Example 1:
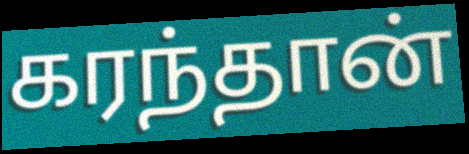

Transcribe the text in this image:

கரந்தான்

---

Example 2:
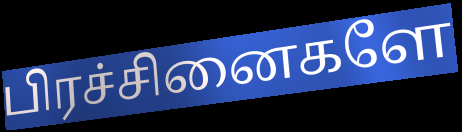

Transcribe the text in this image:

பிரச்சினைகளே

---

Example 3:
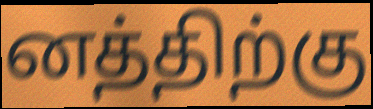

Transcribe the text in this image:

னத்திற்கு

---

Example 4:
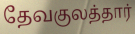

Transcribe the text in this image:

தேவகுலத்தார்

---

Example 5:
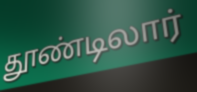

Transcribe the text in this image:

தூண்டிலார்